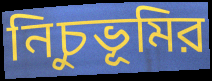
নিচুভূমির